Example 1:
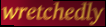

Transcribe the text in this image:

wretchedly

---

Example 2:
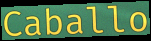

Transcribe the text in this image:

Caballo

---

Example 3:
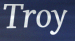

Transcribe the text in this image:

Troy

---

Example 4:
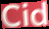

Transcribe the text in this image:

Cid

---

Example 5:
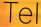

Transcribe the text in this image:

Tel